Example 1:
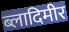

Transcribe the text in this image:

ब्लादिमीर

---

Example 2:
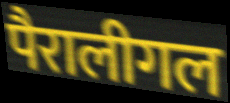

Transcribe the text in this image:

पैरालीगल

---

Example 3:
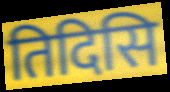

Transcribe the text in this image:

तिदिसि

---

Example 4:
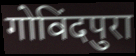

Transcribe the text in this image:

गोविंदपुरा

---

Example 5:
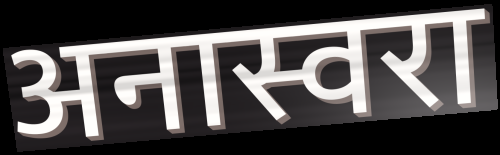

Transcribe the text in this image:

अनास्वरा